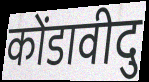
कोंडावीदु